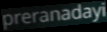
preranadayi